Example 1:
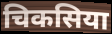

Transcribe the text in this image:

चिकसिया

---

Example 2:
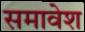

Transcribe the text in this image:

समावेश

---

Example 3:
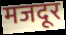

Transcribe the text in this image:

मजदूर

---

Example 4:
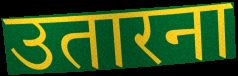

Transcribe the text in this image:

उतारना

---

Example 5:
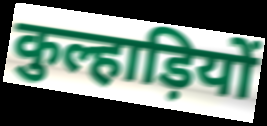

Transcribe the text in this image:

कुल्हाड़ियों